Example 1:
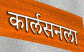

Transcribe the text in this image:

कार्लसनला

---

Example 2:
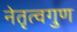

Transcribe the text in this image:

नेतृत्वगुण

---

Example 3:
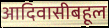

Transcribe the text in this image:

आदिवासीबहूल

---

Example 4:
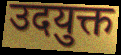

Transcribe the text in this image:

उदयुक्त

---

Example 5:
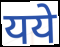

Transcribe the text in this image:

यये